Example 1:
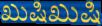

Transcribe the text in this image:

ಖುಷಿಖುಷಿ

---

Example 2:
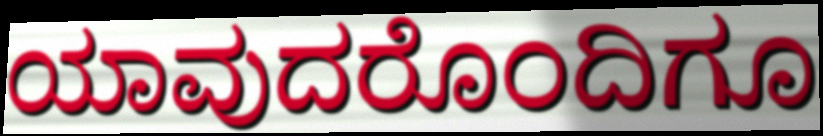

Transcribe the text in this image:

ಯಾವುದರೊಂದಿಗೂ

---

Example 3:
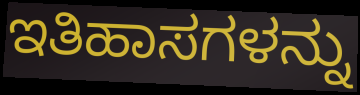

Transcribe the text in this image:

ಇತಿಹಾಸಗಳನ್ನು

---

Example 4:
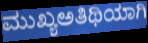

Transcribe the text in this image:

ಮುಖ್ಯಅತಿಥಿಯಾಗಿ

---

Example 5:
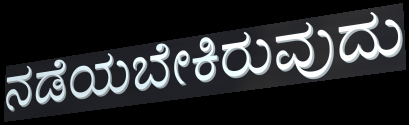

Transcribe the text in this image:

ನಡೆಯಬೇಕಿರುವುದು